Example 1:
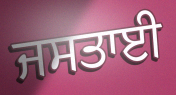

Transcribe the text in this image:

ਜਸਤਾਈ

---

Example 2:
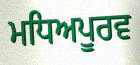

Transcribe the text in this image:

ਮਧਿਅਪੂਰਵ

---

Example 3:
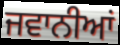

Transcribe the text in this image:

ਜਵਾਨੀਆਂ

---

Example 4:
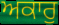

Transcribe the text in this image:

ਅਕਾਰੁ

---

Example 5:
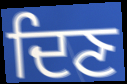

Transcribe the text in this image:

ਦਿਣ